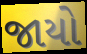
જાયો